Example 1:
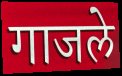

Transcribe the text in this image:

गाजले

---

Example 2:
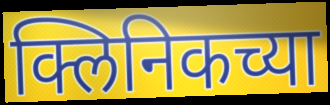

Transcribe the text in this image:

क्लिनिकच्या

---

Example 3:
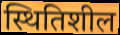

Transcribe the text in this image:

स्थितिशील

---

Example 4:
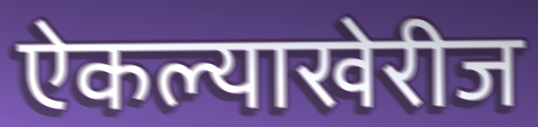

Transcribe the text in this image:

ऐकल्याखेरीज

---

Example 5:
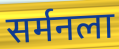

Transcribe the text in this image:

सर्मनला